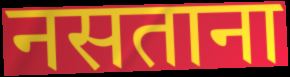
नसताना